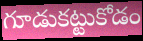
గూడుకట్టుకోడం